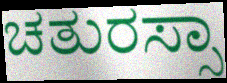
ಚತುರಸ್ಸಾ